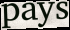
pays